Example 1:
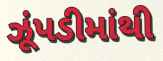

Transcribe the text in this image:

ઝૂંપડીમાંથી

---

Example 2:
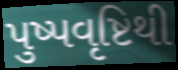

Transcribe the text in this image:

પુષ્પવૃષ્ટિથી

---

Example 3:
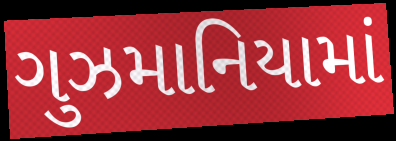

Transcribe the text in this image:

ગુઝમાનિયામાં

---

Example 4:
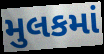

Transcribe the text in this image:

મુલકમાં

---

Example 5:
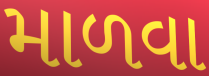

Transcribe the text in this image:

માળવા